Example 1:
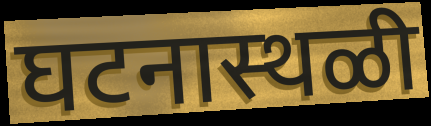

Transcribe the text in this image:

घटनास्थळी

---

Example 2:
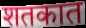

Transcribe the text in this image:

शतकात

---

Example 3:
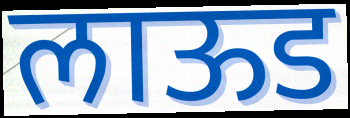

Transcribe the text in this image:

लाऊड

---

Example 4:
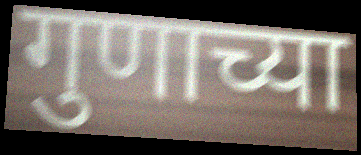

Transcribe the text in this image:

गुणाच्या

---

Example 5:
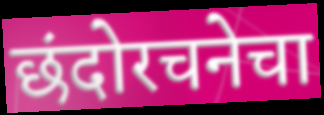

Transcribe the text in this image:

छंदोरचनेचा